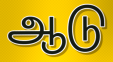
ஆடு